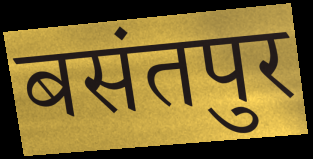
बसंतपुर